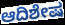
ಆದಿಶೇಷ